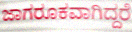
ಜಾಗರೂಕವಾಗಿದ್ದರೆ